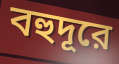
বহুদূরে